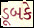
ડૂબકે